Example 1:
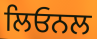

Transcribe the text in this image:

ਲਿਓਨਲ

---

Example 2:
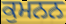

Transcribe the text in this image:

ਕੁਮਨਨ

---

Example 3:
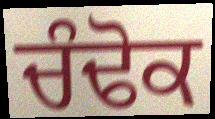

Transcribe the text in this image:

ਚੰਢੋਕ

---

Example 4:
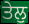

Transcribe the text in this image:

ਤੇਲੁ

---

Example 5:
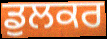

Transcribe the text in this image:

ਡੁਲਕਰ